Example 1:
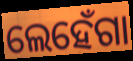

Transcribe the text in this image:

ଲେହେଁଗା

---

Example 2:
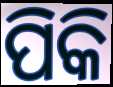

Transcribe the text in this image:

ପିକି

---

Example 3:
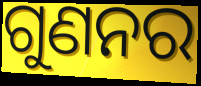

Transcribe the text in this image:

ଗୁଣନର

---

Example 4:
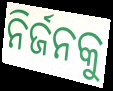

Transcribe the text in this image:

ନିର୍ଜନକୁ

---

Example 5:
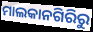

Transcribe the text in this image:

ମାଲକାନଗିରିରୁ